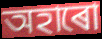
অহাৰো